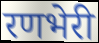
रणभेरी